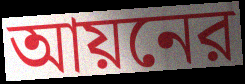
আয়নের